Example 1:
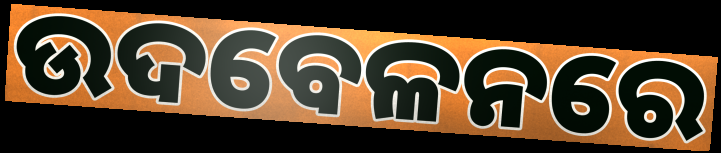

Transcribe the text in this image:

ଉଦବେଳନରେ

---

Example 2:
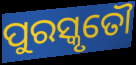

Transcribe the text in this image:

ପୁରସ୍କୃତୌ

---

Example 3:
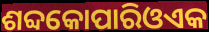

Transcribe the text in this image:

ଶବ୍ଦକୋପାରିଓଏକ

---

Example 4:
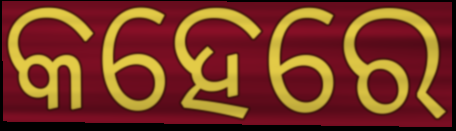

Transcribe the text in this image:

କହେରେ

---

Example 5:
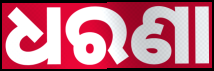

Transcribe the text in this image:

ଧରଣା